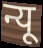
न्यू